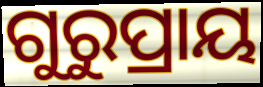
ଗୁରୁପ୍ରାୟ